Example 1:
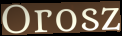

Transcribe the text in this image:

Orosz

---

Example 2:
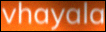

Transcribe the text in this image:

vhayala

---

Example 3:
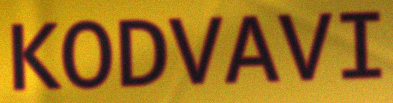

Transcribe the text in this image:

KODVAVI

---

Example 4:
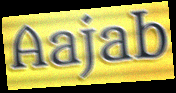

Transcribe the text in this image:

Aajab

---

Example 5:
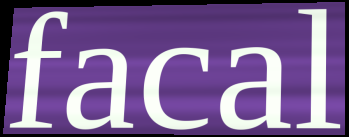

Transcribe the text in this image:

facal